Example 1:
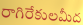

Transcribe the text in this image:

రాగిరేకులమీద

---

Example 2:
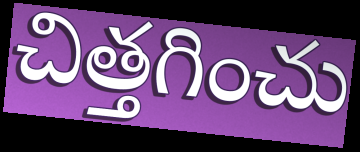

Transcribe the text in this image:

చిత్తగించు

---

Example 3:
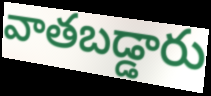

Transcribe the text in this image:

వాతబడ్డారు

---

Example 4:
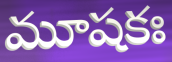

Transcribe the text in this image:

మూషకః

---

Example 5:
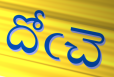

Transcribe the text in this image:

దోఁచె